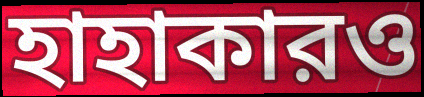
হাহাকারও